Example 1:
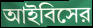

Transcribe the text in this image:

আইবিসের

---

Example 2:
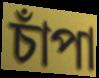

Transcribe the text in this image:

চাঁপা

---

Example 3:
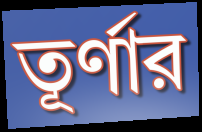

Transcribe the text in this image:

তূর্ণার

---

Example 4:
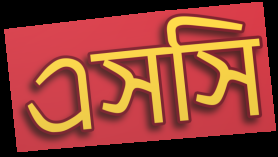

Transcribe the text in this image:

এসসি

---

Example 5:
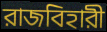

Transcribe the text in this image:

রাজবিহারী